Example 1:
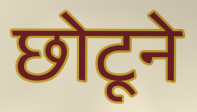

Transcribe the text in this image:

छोटूने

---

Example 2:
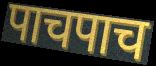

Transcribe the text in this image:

पाचपाच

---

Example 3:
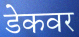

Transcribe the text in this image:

डेकवर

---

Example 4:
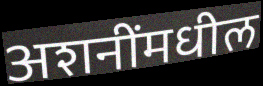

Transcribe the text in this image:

अशनींमधील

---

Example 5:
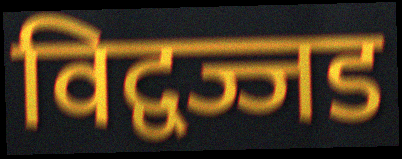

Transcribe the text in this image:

विद्वज्जड